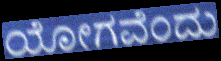
ಯೋಗವೆಂದು